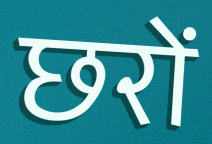
छरों